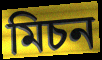
মিচন